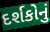
દર્શકોનું